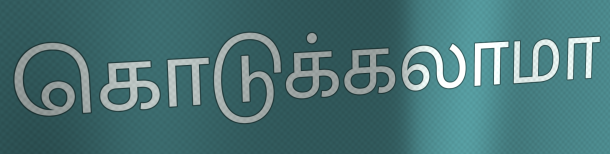
கொடுக்கலாமா